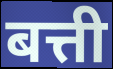
बत्ती